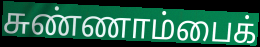
சுண்ணாம்பைக்